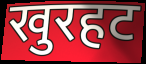
खुरहट